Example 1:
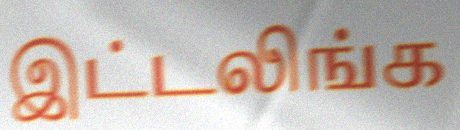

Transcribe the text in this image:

இட்டலிங்க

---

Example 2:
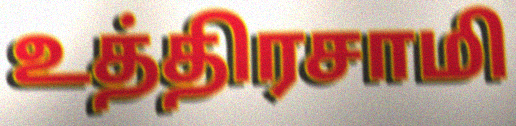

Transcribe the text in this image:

உத்திரசாமி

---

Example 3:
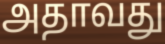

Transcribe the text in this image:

அதாவது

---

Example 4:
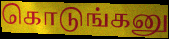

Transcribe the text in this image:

கொடுங்கனு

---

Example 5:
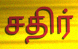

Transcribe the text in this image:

சதிர்